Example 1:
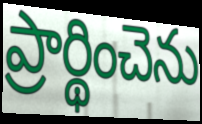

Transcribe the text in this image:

ప్రార్థించెను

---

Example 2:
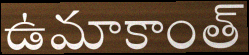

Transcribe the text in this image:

ఉమాకాంత్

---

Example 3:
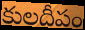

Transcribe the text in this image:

కులదీపం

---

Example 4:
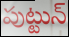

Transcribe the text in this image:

పుట్టున్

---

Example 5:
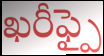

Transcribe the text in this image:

ఖరీఫ్పై